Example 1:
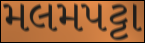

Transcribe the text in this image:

મલમપટ્ટા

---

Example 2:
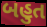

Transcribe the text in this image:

બહુત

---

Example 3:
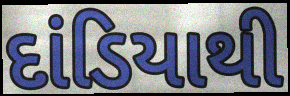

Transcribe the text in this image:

દાંડિયાથી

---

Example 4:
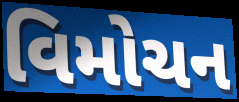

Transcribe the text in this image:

વિમોચન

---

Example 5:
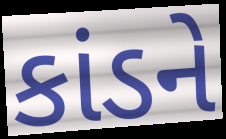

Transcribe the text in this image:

કાંડને